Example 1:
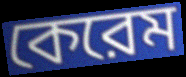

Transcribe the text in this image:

কেরেম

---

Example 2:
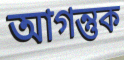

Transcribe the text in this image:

আগন্তুক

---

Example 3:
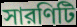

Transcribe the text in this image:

সারণিটি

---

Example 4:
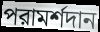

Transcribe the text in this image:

পরামর্শদান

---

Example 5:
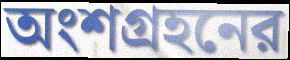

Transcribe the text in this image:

অংশগ্রহনের